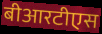
बीआरटीएस